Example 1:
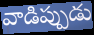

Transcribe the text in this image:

వాడిప్పుడు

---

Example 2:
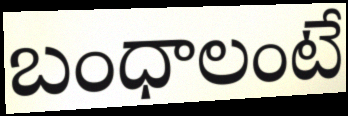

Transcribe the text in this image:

బంధాలంటే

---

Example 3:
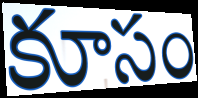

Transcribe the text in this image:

కూసం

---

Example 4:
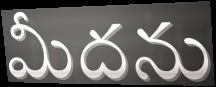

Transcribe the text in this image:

మీదను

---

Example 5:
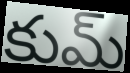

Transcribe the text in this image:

కుమ్